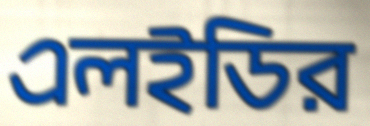
এলইডির